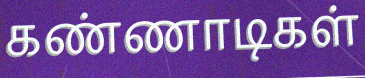
கண்ணாடிகள்